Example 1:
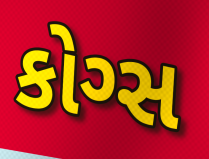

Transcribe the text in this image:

કોગ્સ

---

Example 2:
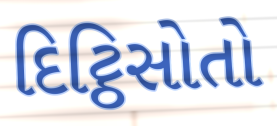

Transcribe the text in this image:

દિટ્ઠિસોતો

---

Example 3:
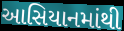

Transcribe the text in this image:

આસિયાનમાંથી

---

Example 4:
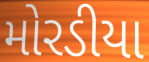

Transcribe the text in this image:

મોરડીયા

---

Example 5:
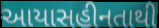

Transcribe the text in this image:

આયાસહીનતાથી